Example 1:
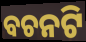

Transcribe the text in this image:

ବଚନଟି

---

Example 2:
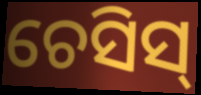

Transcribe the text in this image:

ଚେସିସ୍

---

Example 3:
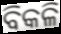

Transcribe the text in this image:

ବିକଳି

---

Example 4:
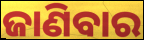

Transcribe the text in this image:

ଜାଣିବାର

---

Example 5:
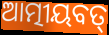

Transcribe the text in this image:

ଆତ୍ମୀୟବତ୍